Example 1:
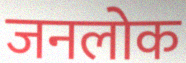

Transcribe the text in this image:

जनलोक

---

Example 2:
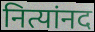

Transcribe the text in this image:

नित्यांनद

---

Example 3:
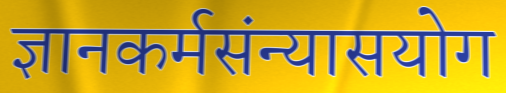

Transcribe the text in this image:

ज्ञानकर्मसंन्यासयोग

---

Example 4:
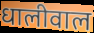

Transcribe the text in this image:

धालीवाल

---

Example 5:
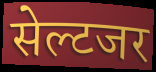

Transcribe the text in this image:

सेल्टजर